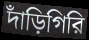
দাঁড়িগিরি